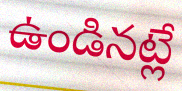
ఉండినట్లే